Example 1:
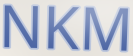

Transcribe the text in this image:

NKM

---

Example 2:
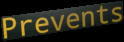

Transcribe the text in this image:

Prevents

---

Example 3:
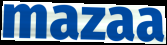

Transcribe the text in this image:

mazaa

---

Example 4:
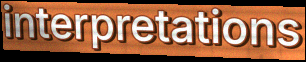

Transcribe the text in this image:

interpretations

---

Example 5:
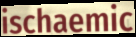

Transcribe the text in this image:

ischaemic